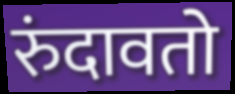
रुंदावतो